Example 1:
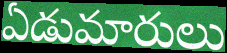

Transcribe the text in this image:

ఏడుమారులు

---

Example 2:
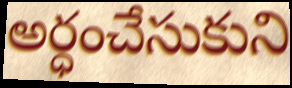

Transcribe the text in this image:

అర్ధంచేసుకుని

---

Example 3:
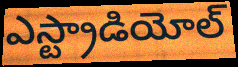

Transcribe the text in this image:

ఎస్ట్రాడియోల్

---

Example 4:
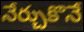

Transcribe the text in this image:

నేర్చుకొనే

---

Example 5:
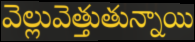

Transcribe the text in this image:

వెల్లువెత్తుతున్నాయి